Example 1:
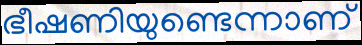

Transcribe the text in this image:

ഭീഷണിയുണ്ടെന്നാണ്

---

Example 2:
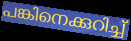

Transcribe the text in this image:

പങ്കിനെക്കുറിച്ച്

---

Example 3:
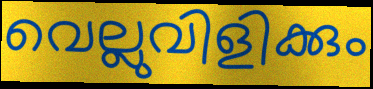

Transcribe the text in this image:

വെല്ലുവിളിക്കും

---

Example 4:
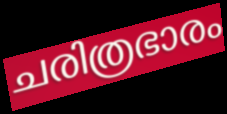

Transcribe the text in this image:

ചരിത്രഭാരം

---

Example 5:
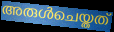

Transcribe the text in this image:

അരുൾചെയ്തത്